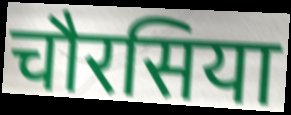
चौरसिया